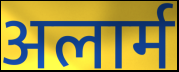
अलार्म